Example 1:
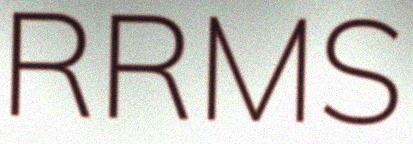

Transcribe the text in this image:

RRMS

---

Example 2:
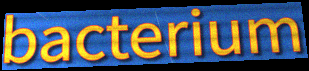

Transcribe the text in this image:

bacterium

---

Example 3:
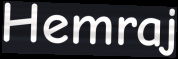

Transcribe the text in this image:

Hemraj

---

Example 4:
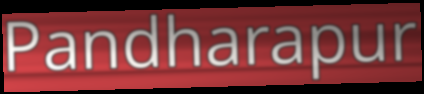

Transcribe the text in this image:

Pandharapur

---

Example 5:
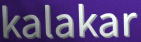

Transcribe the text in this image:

kalakar